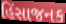
હિંસાજનક